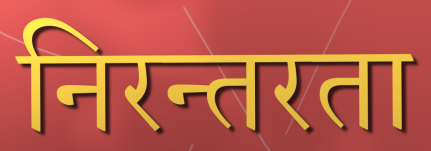
निरन्तरता